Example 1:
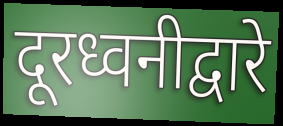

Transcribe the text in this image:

दूरध्वनीद्वारे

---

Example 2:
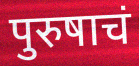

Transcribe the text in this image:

पुरुषाचं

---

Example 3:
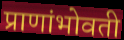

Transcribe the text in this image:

प्राणांभोवती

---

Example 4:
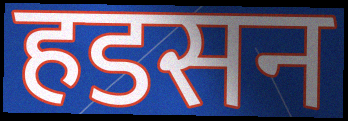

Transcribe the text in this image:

हडसन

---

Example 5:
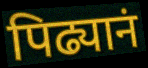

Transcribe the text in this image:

पिढ्यानं